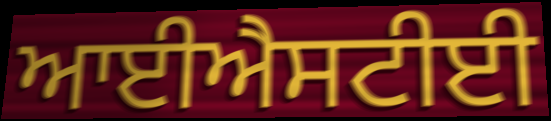
ਆਈਐਸਟੀਈ